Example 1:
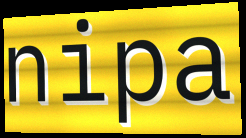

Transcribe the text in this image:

nipa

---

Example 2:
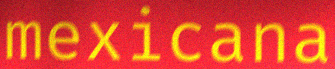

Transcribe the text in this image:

mexicana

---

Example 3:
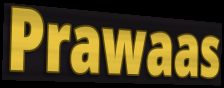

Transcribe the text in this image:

Prawaas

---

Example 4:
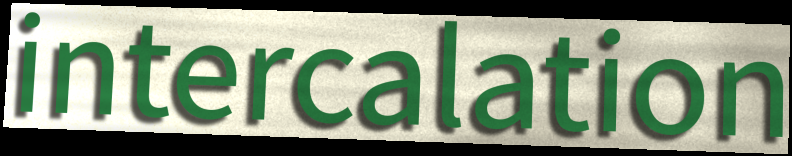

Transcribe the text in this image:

intercalation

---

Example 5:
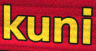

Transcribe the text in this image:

kuni